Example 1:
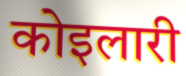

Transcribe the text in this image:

कोइलारी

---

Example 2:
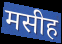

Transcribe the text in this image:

मसीह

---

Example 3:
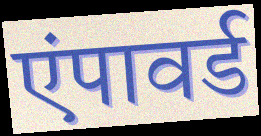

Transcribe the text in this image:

एंपावर्ड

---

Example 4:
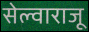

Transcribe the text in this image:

सेल्वाराजू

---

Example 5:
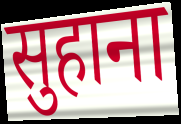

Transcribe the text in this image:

सुहाना